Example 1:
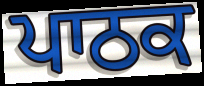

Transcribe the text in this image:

ਪਾਠਕ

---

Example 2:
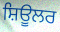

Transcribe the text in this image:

ਸ਼ਿਊਲਰ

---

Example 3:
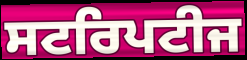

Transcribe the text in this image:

ਸਟਰਿਪਟੀਜ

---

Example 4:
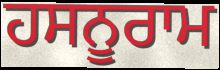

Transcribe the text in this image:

ਹਸਨੂਰਾਮ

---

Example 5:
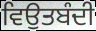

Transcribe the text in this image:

ਵਿਉਤਬੰਦੀ